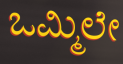
ಒಮ್ಮಿಲೇ